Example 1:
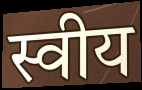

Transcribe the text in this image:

स्वीय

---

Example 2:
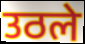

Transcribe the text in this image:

उठले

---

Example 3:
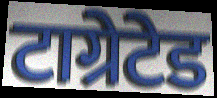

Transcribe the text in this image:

टाग्रेटेड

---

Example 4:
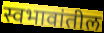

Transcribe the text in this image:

स्वभावांतील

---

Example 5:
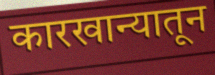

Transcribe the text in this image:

कारखान्यातून